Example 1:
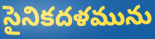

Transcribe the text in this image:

సైనికదళమును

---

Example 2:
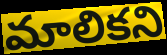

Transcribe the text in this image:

మాలికని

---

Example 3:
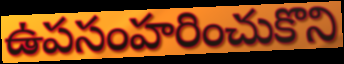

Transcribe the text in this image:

ఉపసంహరించుకొని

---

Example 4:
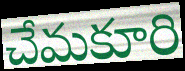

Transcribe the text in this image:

చేమకూరి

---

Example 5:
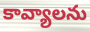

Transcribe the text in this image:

కావ్యాలను